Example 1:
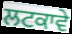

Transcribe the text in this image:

ਲਟਕਾਵੇ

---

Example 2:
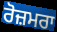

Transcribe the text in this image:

ਰੋਜ਼ਮਰਾ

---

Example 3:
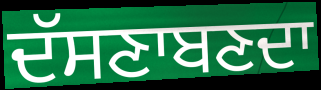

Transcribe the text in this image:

ਦੱਸਣਾਬਣਦਾ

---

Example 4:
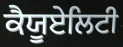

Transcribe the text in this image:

ਕੈਯੂਏਲਿਟੀ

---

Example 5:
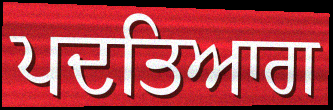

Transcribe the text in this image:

ਪਦਤਿਆਗ